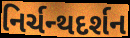
નિર્ચન્થદર્શન